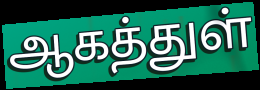
ஆகத்துள்